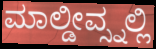
ಮಾಲ್ಡೀವ್ಸ್ನಲ್ಲಿ